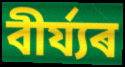
বীৰ্য্যৰ